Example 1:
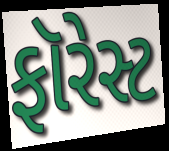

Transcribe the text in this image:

ફૉરેસ્ટ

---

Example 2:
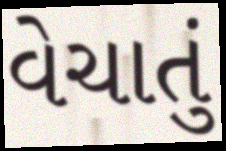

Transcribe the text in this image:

વેચાતું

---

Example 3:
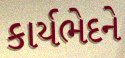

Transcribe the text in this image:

કાર્યભેદને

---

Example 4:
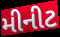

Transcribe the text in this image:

મીનીટ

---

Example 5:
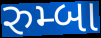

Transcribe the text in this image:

રુમ્બા